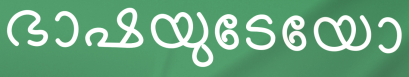
ഭാഷയുടേയോ